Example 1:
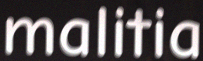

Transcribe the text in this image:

malitia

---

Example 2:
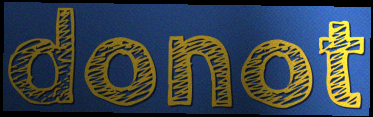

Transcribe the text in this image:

donot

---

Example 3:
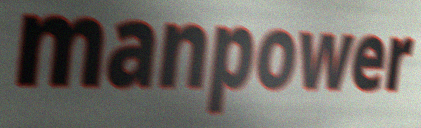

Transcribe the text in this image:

manpower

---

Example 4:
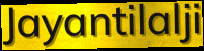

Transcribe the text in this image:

Jayantilalji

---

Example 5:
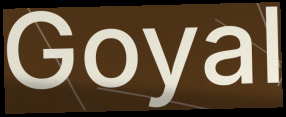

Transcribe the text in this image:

Goyal